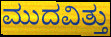
ಮುದವಿತ್ತು